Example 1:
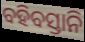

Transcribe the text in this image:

ବହିବସ୍ତାନି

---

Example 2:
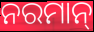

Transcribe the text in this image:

ନରମାନ୍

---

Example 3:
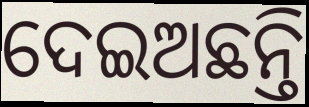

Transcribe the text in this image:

ଦେଇଅଛନ୍ତି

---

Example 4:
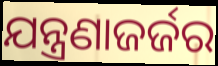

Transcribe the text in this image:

ଯନ୍ତ୍ରଣାଜର୍ଜର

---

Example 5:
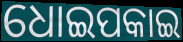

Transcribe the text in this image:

ଧୋଇପକାଇ